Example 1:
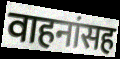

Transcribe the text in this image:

वाहनांसह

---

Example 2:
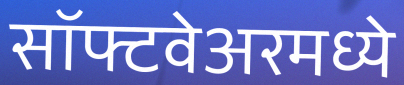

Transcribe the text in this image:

सॉफ्टवेअरमध्ये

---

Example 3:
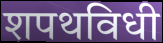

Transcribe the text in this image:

शपथविधी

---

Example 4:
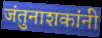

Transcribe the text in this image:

जंतुनाशकांनी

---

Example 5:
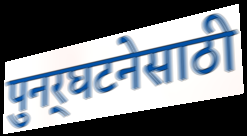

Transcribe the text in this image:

पुनर्घटनेसाठी